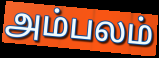
அம்பலம்